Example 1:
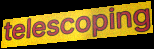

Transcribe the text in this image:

telescoping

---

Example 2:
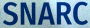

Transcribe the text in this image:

SNARC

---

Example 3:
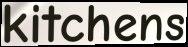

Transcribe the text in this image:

kitchens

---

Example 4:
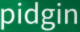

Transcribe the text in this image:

pidgin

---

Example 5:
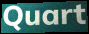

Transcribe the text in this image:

Quart